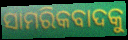
ସାମରିକବାଦକୁ